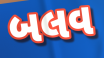
બલવ